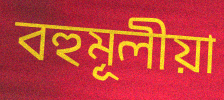
বহুমূলীয়া